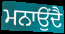
ਮਨਾਉਂਦੈ